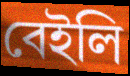
বেইলি